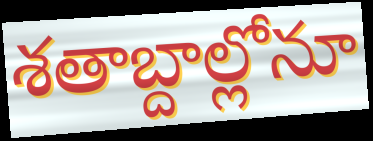
శతాబ్దాల్లోనూ